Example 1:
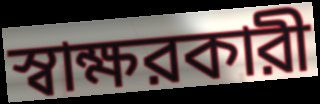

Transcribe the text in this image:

স্বাক্ষরকারী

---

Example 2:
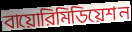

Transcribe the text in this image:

বায়োরিমিডিয়েশন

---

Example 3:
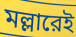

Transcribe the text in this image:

মল্লারেই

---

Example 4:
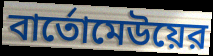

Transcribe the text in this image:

বার্তোমেউয়ের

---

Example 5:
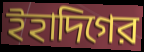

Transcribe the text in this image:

ইহাদিগের